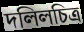
দলিলচিত্র